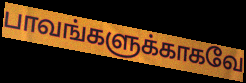
பாவங்களுக்காகவே